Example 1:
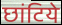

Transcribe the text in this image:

छांटिये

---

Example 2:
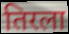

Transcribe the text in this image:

तिरला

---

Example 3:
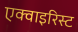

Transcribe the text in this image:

एक्वाइरिस्ट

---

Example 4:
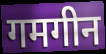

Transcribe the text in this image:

गमगीन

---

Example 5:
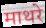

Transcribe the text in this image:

माथरे